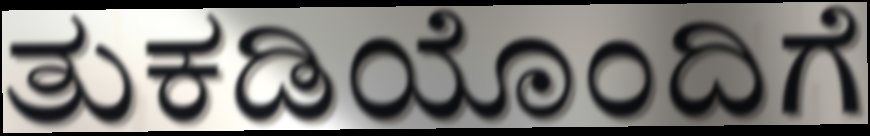
ತುಕಡಿಯೊಂದಿಗೆ